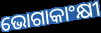
ଭୋଗାକାଂକ୍ଷୀ